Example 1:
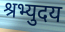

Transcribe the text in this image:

श्रभ्युदय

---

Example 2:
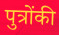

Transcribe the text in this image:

पुत्रोंकी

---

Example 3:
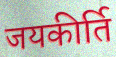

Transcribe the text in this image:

जयकीर्ति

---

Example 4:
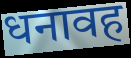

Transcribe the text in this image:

धनावह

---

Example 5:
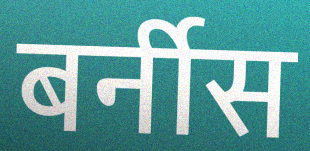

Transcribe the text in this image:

बर्नीस